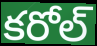
కరోల్